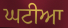
ਘਟੀਆ